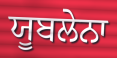
ਯੂਬਲੇਨਾ